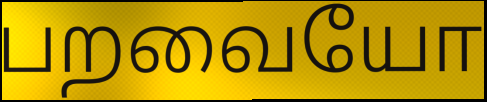
பறவையோ